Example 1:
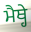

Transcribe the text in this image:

ਮੈਥ੍ਹੇ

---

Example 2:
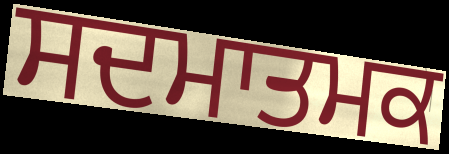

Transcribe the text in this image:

ਸਦਮਾਤਮਕ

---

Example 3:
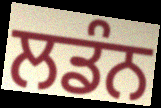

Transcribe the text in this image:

ਲਡੰਨ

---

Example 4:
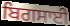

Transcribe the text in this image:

ਬਿਗਸਾਈ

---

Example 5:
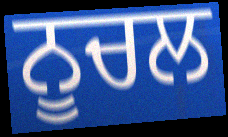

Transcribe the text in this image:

ਨੂਚਲ